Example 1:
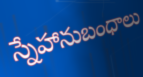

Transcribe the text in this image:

స్నేహానుబంధాలు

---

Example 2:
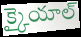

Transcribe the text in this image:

క్కైయాల్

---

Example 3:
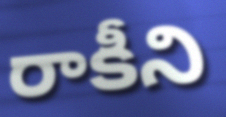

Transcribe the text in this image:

రాకీని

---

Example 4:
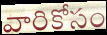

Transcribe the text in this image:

వారికోసం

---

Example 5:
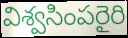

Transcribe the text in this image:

విశ్వసింపరైరి